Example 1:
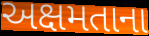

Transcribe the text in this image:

અક્ષમતાના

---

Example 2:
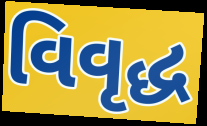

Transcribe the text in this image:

વિવૃદ્ધ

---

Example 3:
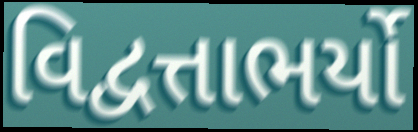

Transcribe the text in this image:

વિદ્વત્તાભર્યો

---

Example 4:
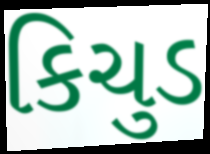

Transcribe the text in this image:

કિચુડ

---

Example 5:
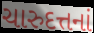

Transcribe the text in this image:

ચારુદત્તનાં